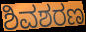
ಶಿವಶರಣ